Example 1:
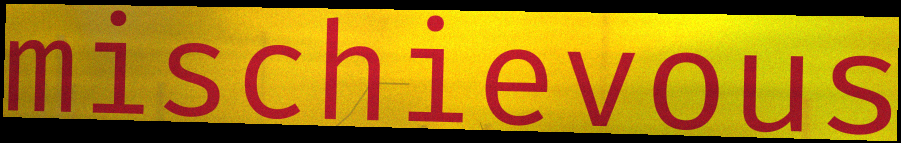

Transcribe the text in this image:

mischievous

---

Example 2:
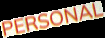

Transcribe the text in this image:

PERSONAL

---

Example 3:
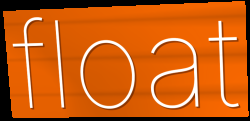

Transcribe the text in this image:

float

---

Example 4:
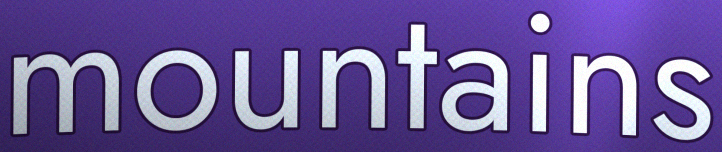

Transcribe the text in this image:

mountains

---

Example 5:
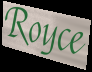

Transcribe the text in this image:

Royce